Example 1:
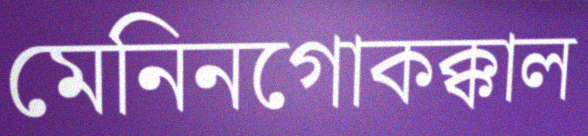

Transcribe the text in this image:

মেনিনগোকক্কাল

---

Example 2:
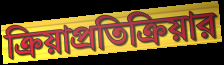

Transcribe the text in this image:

ক্রিয়াপ্রতিক্রিয়ার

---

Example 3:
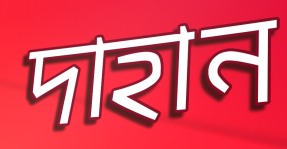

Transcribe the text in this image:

দাহান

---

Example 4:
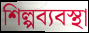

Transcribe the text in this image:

শিল্পব্যবস্থা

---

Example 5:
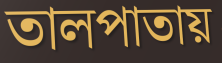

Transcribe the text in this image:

তালপাতায়